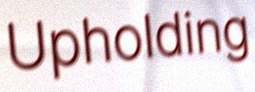
Upholding